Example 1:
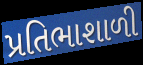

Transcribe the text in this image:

પ્રતિભાશાળી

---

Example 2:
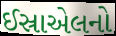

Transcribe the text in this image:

ઈસ્રાએલનો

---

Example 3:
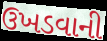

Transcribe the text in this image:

ઉખડવાની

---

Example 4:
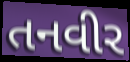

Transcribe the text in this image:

તનવીર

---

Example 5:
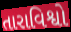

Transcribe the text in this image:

તારાવિશ્વો